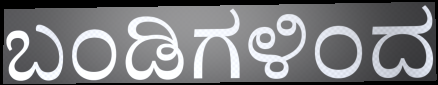
ಬಂಡಿಗಳಿಂದ